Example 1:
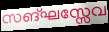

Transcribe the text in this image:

സങ്ഘസ്സേവ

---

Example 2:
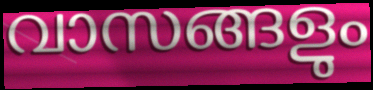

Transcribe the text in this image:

വാസങ്ങളും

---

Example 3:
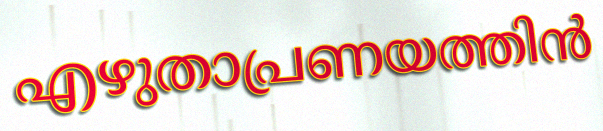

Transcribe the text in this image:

എഴുതാപ്രണയത്തിൻ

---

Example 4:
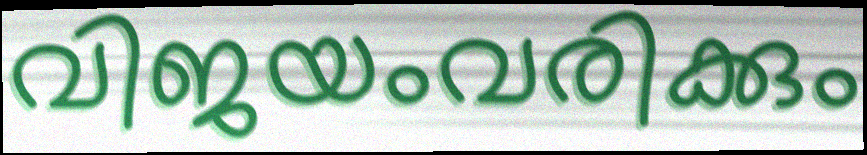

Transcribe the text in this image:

വിജയംവരിക്കും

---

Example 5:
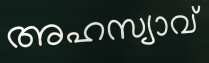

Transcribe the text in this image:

അഹസ്യാവ്